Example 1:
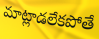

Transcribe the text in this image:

మాట్లాడలేకపోతే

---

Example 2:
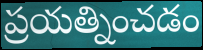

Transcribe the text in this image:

ప్రయత్నించడం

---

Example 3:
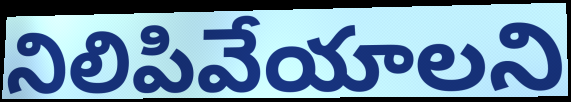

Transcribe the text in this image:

నిలిపివేయాలని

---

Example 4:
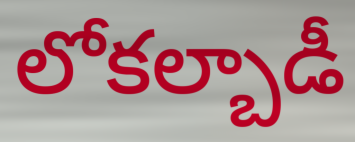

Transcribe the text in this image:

లోకల్బాడీ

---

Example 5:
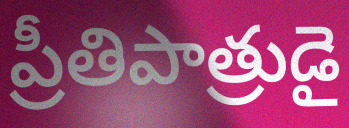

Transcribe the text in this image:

ప్రీతిపాత్రుడై